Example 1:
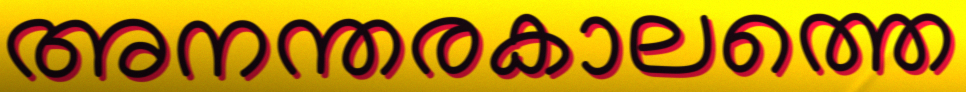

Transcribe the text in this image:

അനന്തരകാലത്തെ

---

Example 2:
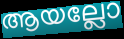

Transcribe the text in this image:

ആയല്ലോ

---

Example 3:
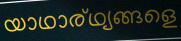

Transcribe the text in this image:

യാഥാര്ഥ്യങ്ങളെ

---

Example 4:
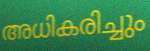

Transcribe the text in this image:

അധികരിച്ചും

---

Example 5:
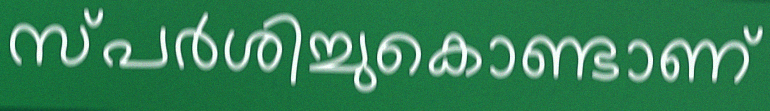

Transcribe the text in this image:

സ്പർശിച്ചുകൊണ്ടാണ്